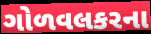
ગોળવલકરના